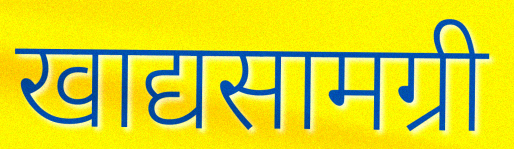
खाद्यसामग्री